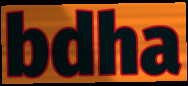
bdha